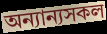
অন্যান্যসকল